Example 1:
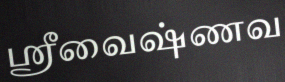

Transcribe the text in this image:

ஸ்ரீவைஷ்ணவ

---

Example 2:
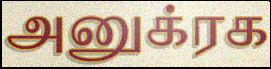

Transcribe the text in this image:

அனுக்ரக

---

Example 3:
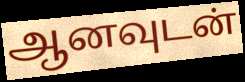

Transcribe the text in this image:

ஆனவுடன்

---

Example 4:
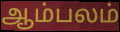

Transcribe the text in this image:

ஆம்பலம்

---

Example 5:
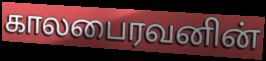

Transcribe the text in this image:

காலபைரவனின்